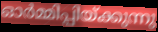
ഓർമ്മിപ്പിയ്ക്കുന്നു